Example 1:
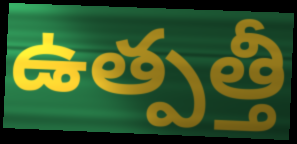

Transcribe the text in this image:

ఉత్పత్తీ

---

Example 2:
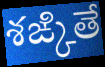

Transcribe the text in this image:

శఙ్కితే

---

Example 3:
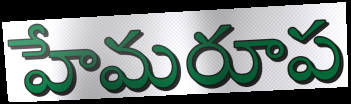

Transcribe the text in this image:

హేమరూప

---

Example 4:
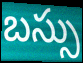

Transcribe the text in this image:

బస్సు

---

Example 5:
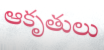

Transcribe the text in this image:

ఆకృతులు